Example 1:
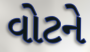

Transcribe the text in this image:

વોટને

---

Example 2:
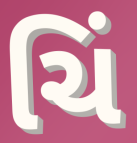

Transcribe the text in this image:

ચિં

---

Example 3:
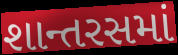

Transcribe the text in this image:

શાન્તરસમાં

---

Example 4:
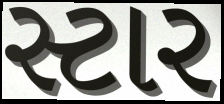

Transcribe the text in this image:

સ્ટાર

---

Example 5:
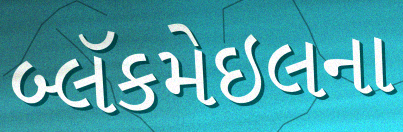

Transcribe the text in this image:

બ્લૅકમેઇલના